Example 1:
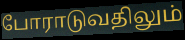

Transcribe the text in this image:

போராடுவதிலும்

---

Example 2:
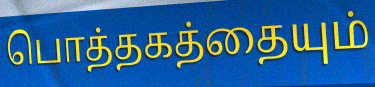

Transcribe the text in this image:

பொத்தகத்தையும்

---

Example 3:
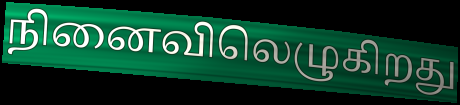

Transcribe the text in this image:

நினைவிலெழுகிறது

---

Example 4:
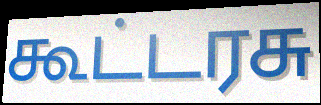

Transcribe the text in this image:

கூட்டரசு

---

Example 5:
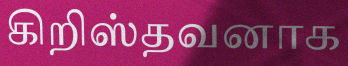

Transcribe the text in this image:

கிறிஸ்தவனாக